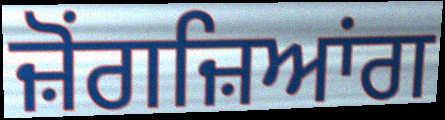
ਜ਼ੋਂਗਜ਼ਿਆਂਗ